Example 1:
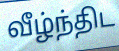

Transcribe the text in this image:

வீழ்ந்திட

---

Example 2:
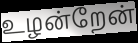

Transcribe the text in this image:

உழன்றேன்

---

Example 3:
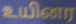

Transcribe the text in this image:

உயினர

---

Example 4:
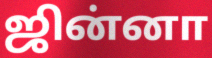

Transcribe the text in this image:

ஜின்னா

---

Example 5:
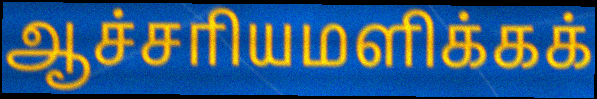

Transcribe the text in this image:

ஆச்சரியமளிக்கக்